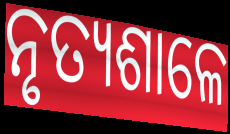
ନୃତ୍ୟଶାଳେ